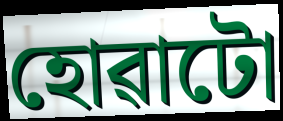
হোৱাটো